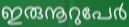
ഇരുനൂറുപേർ